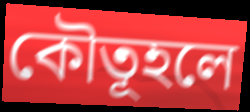
কৌতূহলে